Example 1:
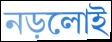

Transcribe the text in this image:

নড়লোই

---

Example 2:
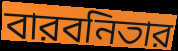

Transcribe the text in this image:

বারবনিতার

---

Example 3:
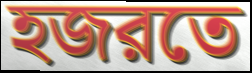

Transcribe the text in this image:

হজরতে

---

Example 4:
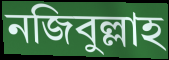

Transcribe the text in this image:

নজিবুল্লাহ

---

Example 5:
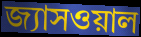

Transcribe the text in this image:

জ্যাসওয়াল